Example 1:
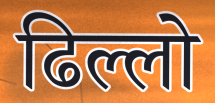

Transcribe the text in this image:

ढिल्लो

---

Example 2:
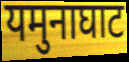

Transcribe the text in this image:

यमुनाघाट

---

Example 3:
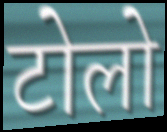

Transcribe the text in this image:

टोलो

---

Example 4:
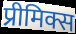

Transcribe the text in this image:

प्रीमिक्स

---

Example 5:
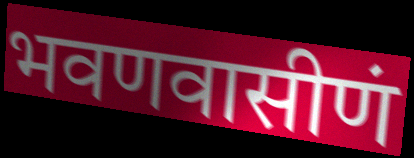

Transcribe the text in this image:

भवणवासीणं